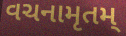
વચનામૃતમ્